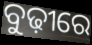
ବୁଢ଼ୀରେ